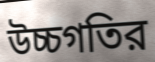
উচ্চগতির